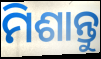
ମିଶାନ୍ତୁ